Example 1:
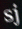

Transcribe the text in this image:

sj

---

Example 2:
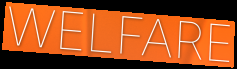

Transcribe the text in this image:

WELFARE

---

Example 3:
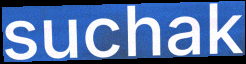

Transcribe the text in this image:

suchak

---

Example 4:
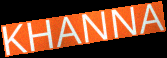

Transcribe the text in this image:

KHANNA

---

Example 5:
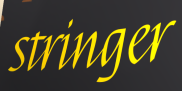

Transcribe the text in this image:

stringer